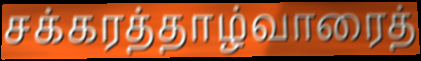
சக்கரத்தாழ்வாரைத்